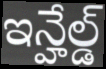
ఇన్హేల్డ్